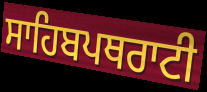
ਸਾਹਿਬਪਥਰਾਟੀ